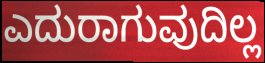
ಎದುರಾಗುವುದಿಲ್ಲ